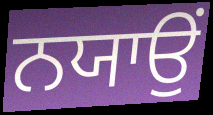
ਨਯਾਉਂ